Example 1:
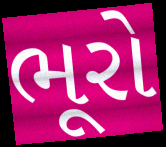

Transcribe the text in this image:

ભૂરો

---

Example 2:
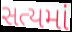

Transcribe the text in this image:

સત્યમાં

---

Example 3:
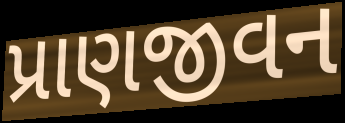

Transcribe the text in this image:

પ્રાણજીવન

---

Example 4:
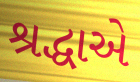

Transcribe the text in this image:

શ્રદ્ધાએ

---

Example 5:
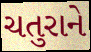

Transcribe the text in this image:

ચતુરાને